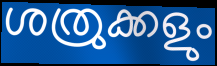
ശത്രുക്കളും